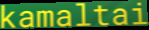
kamaltai